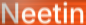
Neetin